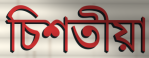
চিশতীয়া